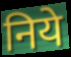
निये